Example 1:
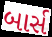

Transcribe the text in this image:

બાર્સ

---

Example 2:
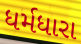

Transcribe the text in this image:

ધર્મધારા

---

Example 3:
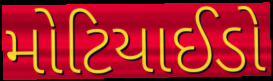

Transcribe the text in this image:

મોટિયાઈડો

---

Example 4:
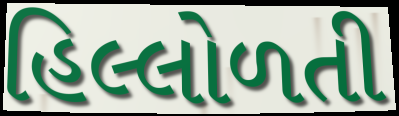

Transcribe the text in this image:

હિલ્લોળતી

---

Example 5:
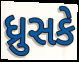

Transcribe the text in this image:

ધ્રુસકે